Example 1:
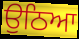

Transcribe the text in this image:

ਉਠਿਆ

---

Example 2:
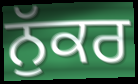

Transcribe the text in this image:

ਨੁੱਕਰ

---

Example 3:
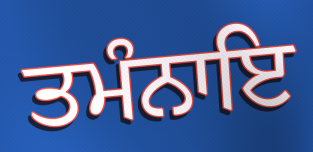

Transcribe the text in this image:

ਤਮੰਨਾਇ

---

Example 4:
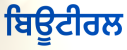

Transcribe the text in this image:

ਬਿਊਟੀਰਲ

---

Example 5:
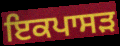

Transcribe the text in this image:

ਇਕਪਾਸੜ